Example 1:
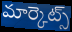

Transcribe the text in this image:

మార్కెట్స్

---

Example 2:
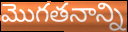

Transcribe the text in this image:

మొగతనాన్ని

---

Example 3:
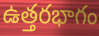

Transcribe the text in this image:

ఉత్తరభాగం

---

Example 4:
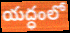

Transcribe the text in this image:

యద్ధంలో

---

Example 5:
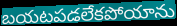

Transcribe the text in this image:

బయటపడలేకపోయాను